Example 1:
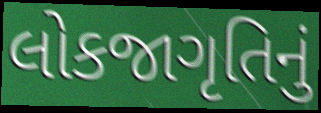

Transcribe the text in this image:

લોકજાગૃતિનું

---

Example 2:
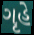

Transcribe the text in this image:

ગૃહે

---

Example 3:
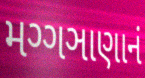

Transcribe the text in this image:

મગ્ગઞાણાનં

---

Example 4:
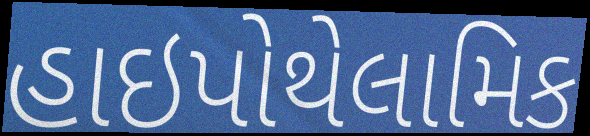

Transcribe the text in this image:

હાઇપોથેલામિક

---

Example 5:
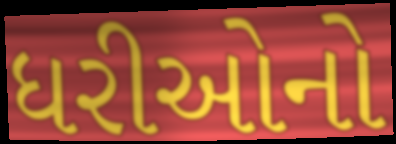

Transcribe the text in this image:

ધરીઓનો